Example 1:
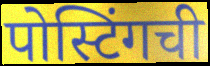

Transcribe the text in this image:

पोस्टिंगची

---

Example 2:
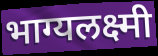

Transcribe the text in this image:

भाग्यलक्ष्मी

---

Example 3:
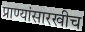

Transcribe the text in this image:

प्राण्यांसारखीच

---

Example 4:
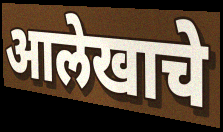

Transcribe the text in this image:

आलेखाचे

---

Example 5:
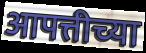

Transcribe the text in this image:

आपत्तीच्या